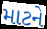
માટને